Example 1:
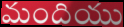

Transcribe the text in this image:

మందియు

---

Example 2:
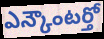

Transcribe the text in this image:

ఎన్కౌంటర్తో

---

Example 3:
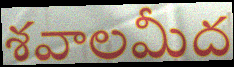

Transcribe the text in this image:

శవాలమీద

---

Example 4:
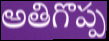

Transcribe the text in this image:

అతిగొప్ప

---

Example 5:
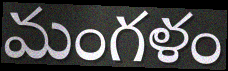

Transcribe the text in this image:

మంగళం